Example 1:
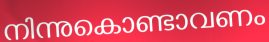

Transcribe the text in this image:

നിന്നുകൊണ്ടാവണം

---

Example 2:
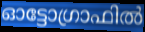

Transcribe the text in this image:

ഓട്ടോഗ്രാഫിൽ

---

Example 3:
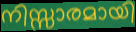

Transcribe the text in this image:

നിസ്സാരമായി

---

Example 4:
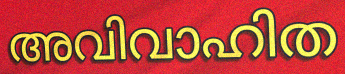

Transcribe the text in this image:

അവിവാഹിത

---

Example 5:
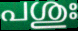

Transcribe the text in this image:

പശുഃ